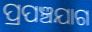
ପ୍ରପଞ୍ଚଯାଗ